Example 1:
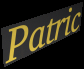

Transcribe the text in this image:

Patric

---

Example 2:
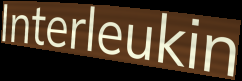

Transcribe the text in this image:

Interleukin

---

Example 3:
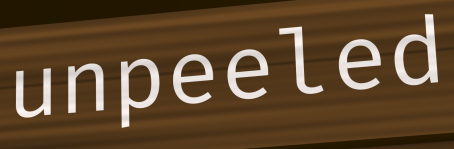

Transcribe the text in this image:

unpeeled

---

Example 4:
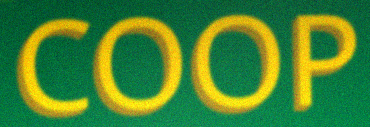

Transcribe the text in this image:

COOP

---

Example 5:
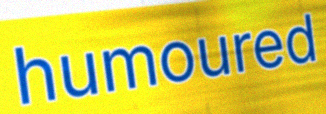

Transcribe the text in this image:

humoured